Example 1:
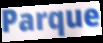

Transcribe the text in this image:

Parque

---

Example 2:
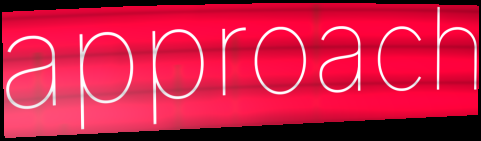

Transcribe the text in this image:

approach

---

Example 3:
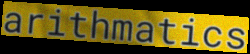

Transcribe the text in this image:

arithmatics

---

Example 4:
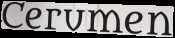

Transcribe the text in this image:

Cerumen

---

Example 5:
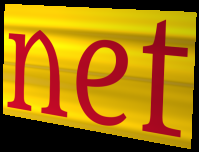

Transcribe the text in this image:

net